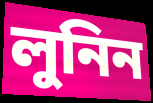
লুনিন